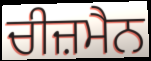
ਚੀਜ਼ਮੈਨ